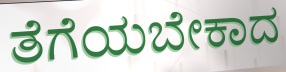
ತೆಗೆಯಬೇಕಾದ